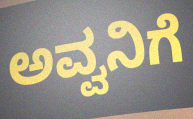
ಅವ್ವನಿಗೆ